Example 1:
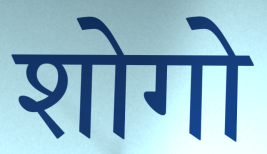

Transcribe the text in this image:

शोगो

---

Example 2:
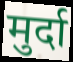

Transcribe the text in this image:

मुर्दा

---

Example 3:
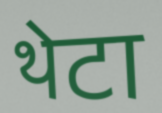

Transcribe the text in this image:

थेटा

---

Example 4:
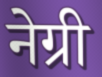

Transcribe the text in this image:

नेग्री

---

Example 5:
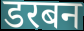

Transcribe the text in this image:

डरबन